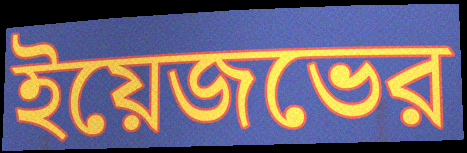
ইয়েজভের